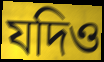
যদিও